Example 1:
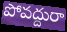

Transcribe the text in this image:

పోవద్దురా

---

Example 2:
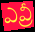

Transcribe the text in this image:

ఎవ్రీ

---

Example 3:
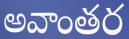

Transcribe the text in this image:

అవాంతర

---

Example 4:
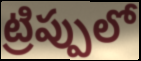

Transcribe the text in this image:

ట్రిప్పులో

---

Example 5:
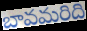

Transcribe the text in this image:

బావమరిది